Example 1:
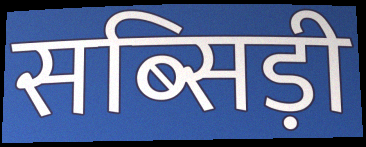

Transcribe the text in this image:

सब्सिड़ी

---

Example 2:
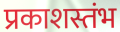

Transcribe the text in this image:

प्रकाशस्तंभ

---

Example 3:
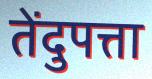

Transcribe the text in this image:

तेंदुपत्ता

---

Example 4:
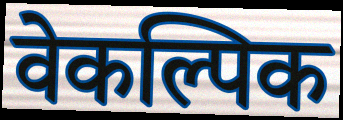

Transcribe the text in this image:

वेकल्पिक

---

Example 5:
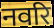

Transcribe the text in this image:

नवरि